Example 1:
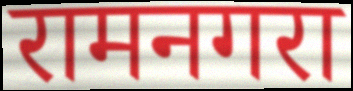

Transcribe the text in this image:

रामनगरा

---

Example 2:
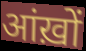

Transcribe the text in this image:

आंख़ों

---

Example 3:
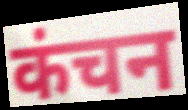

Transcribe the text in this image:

कंचन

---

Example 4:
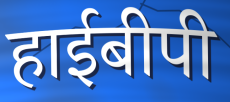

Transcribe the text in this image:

हाईबीपी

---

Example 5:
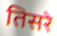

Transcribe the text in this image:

तिसरे